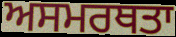
ਅਸਮਰਥਤਾ